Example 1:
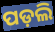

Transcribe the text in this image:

ପଡ଼ଲି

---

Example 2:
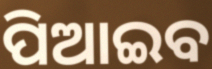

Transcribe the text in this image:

ପିଆଇବ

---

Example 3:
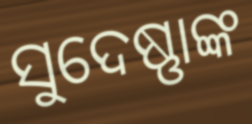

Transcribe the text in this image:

ସୁଦେଷ୍ଣାଙ୍କ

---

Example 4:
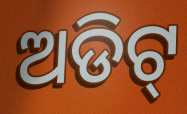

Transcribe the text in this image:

ଅଡିଟ୍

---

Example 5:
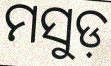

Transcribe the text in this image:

ମସୁଡ଼